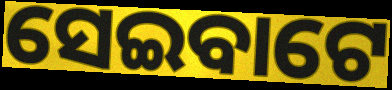
ସେଇବାଟେ